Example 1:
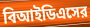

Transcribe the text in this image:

বিআইডিএসের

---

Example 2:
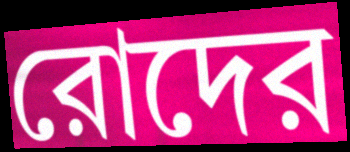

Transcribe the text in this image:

রোদের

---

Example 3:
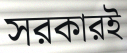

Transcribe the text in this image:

সরকারই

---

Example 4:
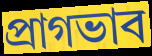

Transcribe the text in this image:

প্রাগভাব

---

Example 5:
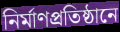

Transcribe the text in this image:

নির্মাণপ্রতিষ্ঠানে